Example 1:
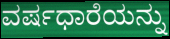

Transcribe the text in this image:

ವರ್ಷಧಾರೆಯನ್ನು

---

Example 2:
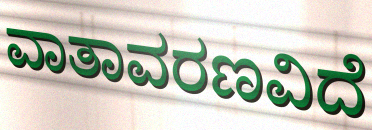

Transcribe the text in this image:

ವಾತಾವರಣವಿದೆ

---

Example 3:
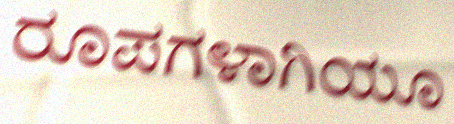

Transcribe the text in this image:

ರೂಪಗಳಾಗಿಯೂ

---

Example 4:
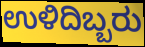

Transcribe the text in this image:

ಉಳಿದಿಬ್ಬರು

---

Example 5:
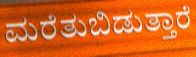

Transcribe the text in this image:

ಮರೆತುಬಿಡುತ್ತಾರೆ